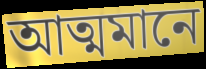
আত্মমানে